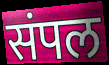
संपल